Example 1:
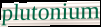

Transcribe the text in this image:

plutonium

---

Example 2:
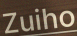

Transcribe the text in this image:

Zuiho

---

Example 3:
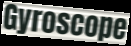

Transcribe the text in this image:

Gyroscope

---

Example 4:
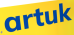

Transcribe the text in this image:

artuk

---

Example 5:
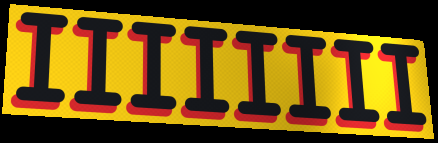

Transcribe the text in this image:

IIIIIIII